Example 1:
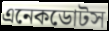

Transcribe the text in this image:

এনেকডোটস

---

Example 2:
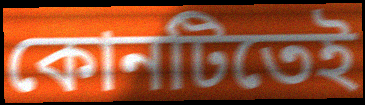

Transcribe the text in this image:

কোনটিতেই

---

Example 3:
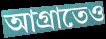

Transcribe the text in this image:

আগ্রাতেও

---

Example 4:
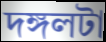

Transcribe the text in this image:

দঙ্গলটা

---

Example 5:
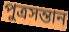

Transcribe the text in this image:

পুত্রসন্তান